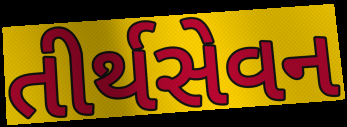
તીર્થસેવન